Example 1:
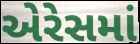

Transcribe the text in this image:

એરેસમાં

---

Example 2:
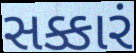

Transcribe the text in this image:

સક્કારં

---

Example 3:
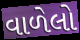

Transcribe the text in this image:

વાળેલો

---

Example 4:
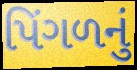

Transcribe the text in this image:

પિંગળનું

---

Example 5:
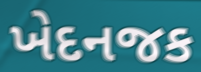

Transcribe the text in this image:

ખેદનજક